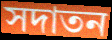
সদাতন